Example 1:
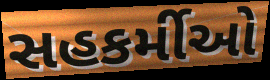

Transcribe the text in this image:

સહકર્મીઓ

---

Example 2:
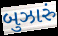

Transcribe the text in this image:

બુઝારું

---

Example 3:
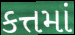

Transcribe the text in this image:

કત્તમાં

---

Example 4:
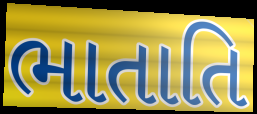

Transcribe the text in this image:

ભાતાતિ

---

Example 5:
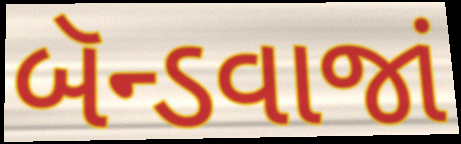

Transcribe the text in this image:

બૅન્ડવાજાં